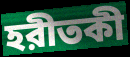
হরীতকী